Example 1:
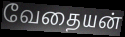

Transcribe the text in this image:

வேதையன்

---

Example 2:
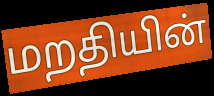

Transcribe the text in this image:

மறதியின்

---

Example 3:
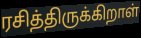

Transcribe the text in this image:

ரசித்திருக்கிறாள்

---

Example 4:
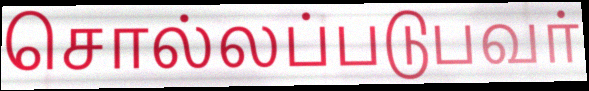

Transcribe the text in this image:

சொல்லப்படுபவர்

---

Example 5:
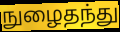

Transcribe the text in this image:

நுழைதந்து